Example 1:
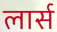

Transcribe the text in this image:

लार्स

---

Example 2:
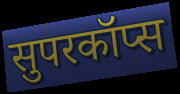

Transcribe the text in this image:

सुपरकॉप्स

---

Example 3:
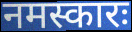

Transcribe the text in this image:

नमस्कारः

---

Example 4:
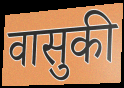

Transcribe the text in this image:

वासुकी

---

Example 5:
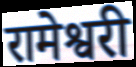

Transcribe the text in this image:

रामेश्वरी